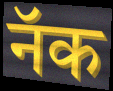
नॅक